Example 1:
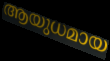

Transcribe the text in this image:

ആയുധമായ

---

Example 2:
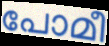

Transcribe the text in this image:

പോമീ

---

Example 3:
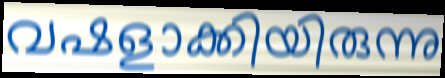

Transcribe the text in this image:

വഷളാക്കിയിരുന്നു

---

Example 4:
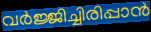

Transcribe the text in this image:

വർജ്ജിച്ചിരിപ്പാൻ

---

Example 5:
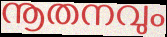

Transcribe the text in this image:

നൂതനവും